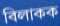
বিলাকক